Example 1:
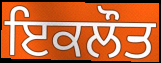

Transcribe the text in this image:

ਇਕਲੌਤ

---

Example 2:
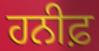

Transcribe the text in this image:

ਹਨੀਫ਼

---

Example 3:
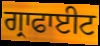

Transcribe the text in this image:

ਗ੍ਰਾਫਾਈਟ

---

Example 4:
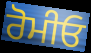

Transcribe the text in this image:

ਰੋਮੀਓ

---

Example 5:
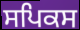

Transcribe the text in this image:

ਸਪਿਕਸ